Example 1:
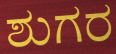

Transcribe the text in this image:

ಶುಗರ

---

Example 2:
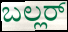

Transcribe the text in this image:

ಬಲ್ಲರ್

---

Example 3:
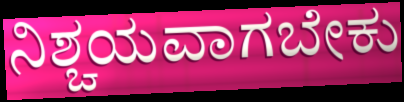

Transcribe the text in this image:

ನಿಶ್ಚಯವಾಗಬೇಕು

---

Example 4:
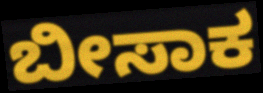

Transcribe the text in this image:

ಬೀಸಾಕ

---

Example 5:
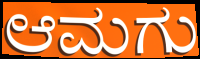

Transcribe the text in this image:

ಆಮಗು